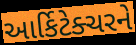
આર્કિટેક્ચરને